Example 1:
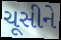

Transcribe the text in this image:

ચૂસીને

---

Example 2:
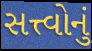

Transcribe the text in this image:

સત્ત્વોનું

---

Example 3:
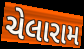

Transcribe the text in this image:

ચેલારામ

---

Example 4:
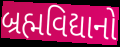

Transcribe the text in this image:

બ્રહ્મવિદ્યાનો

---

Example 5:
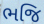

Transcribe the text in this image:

ભજિ